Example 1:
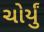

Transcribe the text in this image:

ચોર્યું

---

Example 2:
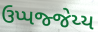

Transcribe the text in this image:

ઉપ્પજ્જેય્ય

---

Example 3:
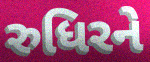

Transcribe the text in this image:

રુધિરને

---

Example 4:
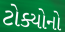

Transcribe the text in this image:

ટોક્યોનો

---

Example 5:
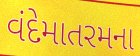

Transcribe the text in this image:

વંદેમાતરમના